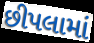
છીપલામાં